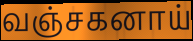
வஞ்சகனாய்